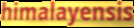
himalayensis